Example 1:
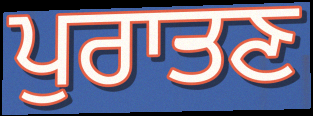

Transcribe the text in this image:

ਪੁਰਾਤਣ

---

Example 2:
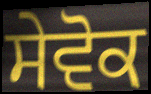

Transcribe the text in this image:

ਸੇਵੋਕ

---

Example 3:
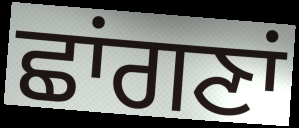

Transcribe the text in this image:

ਛਾਂਗਣਾਂ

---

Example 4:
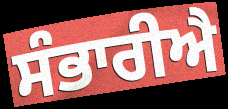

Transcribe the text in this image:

ਸੰਭਾਰੀਐ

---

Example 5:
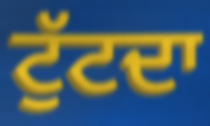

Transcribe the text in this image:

ਟੁੱਟਦਾ